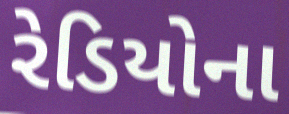
રેડિયોના